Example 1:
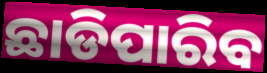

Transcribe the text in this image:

ଛାଡିପାରିବ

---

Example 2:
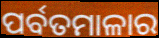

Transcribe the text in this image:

ପର୍ବତମାଳାର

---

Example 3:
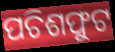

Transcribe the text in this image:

ପଚିଶଫୁଟ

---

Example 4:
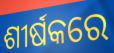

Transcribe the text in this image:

ଶୀର୍ଷକରେ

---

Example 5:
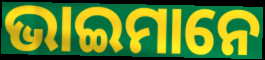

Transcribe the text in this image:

ଭାଇମାନେ